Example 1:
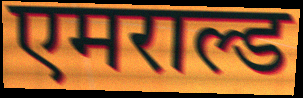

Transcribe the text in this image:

एमराल्‍ड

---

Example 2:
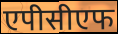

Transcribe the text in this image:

एपीसीएफ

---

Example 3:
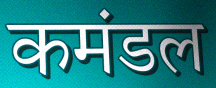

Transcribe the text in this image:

कमंडल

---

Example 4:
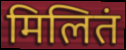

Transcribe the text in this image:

मिलितं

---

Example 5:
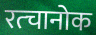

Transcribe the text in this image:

रत्चानोक